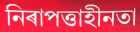
নিৰাপত্তাহীনতা